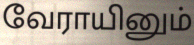
வேராயினும்